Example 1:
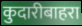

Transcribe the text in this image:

कुदारीबाहरा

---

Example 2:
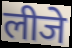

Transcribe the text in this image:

लीजे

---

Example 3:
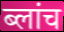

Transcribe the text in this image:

ब्लांच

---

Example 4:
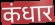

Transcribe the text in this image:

कंधार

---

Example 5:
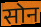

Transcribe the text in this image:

सोन